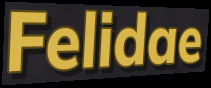
Felidae